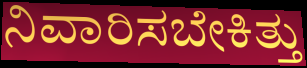
ನಿವಾರಿಸಬೇಕಿತ್ತು